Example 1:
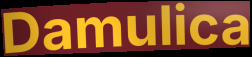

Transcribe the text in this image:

Damulica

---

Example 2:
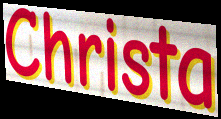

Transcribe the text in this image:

Christa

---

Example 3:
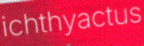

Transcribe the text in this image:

ichthyactus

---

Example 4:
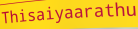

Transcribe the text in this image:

Thisaiyaarathu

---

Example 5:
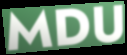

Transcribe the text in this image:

MDU